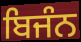
ਬਿਜੰਨ